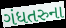
ગંધતરુના